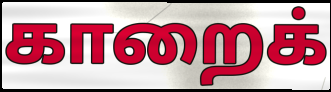
காறைக்